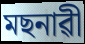
মছনাৱী